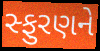
સ્ફુરણને